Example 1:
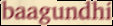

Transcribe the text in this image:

baagundhi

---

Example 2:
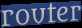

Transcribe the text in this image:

router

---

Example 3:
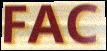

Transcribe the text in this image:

FAC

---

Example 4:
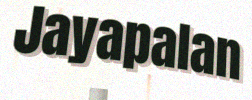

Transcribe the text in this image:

Jayapalan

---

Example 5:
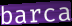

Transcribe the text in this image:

barca